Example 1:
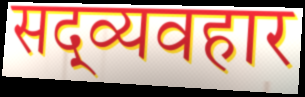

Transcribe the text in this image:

सद्व्यवहार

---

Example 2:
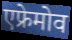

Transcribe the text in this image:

एफ्रेमोव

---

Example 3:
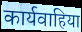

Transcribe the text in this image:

कार्यवाहिया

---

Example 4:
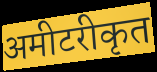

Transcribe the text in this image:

अमीटरीकृत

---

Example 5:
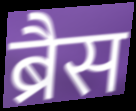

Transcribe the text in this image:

ब्रैस